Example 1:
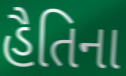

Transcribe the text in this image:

હૈતિના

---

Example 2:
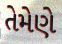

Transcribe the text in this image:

તેમેણે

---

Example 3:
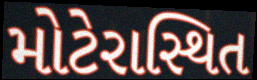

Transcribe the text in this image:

મોટેરાસ્થિત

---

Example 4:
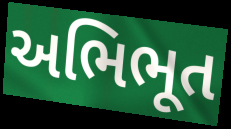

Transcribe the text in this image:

અભિભૂત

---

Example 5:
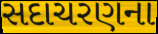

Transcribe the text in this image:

સદાચરણના